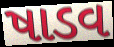
ષાડવ